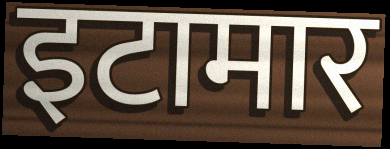
इटामार